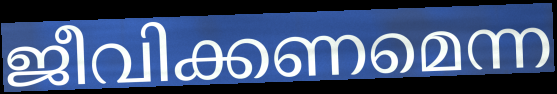
ജീവിക്കണമെന്ന